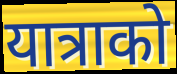
यात्राको